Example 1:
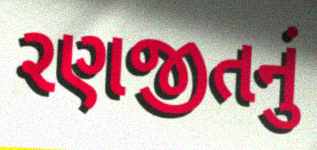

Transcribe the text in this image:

રણજીતનું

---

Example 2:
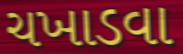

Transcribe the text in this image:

ચખાડવા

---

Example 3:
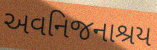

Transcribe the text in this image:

અવનિજનાશ્રય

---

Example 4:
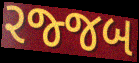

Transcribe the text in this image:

રજ્જબ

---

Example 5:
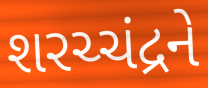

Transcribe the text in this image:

શરચ્ચંદ્રને